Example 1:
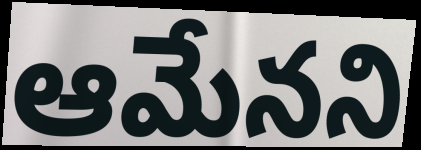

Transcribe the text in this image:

ఆమేనని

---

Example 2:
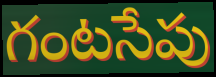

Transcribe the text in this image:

గంటసేపు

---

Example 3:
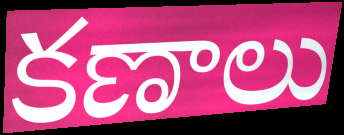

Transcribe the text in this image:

కణాలు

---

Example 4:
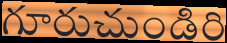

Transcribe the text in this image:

గూరుచుండిరి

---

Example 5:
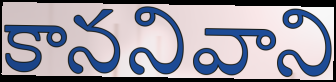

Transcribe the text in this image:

కాననివాని